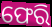
ଫେରି